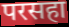
परसहा